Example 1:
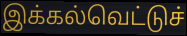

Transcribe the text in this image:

இக்கல்வெட்டுச்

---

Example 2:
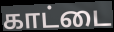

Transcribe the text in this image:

காட்டை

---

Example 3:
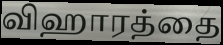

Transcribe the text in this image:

விஹாரத்தை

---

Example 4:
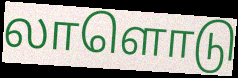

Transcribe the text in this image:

லாளொடு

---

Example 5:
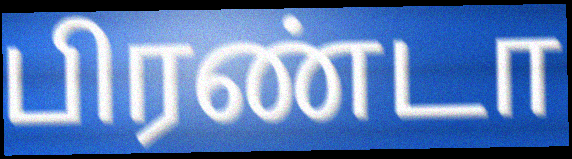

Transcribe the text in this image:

பிரண்டா